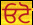
ਓਟੋ